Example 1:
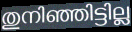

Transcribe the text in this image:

തുനിഞ്ഞിട്ടില്ല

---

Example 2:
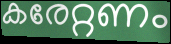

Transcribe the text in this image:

കരേറ്റണം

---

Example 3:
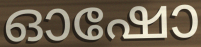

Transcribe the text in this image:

ഓഷോ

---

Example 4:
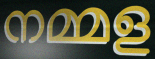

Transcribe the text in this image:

നമ്മള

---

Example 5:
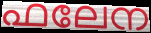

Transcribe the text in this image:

ഫലേന